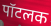
पॉटलक